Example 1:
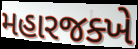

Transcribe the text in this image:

મહારજક્ખે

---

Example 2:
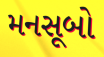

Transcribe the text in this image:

મનસૂબો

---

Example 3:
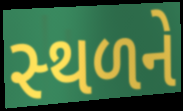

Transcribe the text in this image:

સ્‍થળને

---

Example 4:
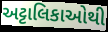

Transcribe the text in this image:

અટ્ટાલિકાઓથી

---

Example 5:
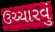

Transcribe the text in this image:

ઉચ્ચારવું